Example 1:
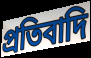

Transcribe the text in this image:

প্রতিবাদি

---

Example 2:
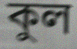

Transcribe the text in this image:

কুল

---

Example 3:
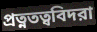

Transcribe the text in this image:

প্রত্নতত্ববিদরা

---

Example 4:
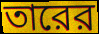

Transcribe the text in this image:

তারের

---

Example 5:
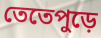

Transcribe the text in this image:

তেতেপুড়ে